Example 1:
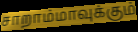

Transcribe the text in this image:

சாறாம்மாவுக்கும்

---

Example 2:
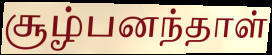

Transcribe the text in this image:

சூழ்பனந்தாள்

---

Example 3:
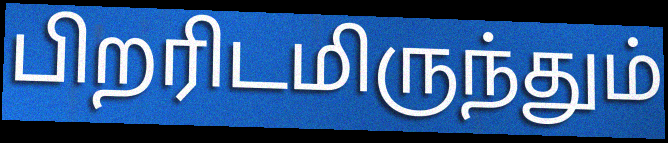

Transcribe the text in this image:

பிறரிடமிருந்தும்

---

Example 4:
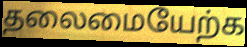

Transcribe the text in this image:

தலைமையேற்க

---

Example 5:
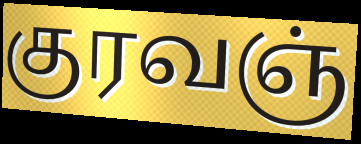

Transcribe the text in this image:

குரவஞ்